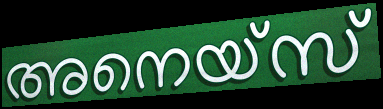
അനെയ്സ്